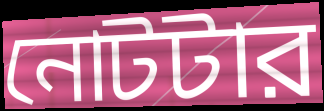
নোটটার